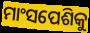
ମାଂସପେଶିକୁ